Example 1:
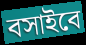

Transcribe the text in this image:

বসাইবে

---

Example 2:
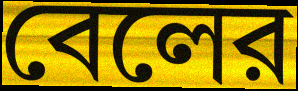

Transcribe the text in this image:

বেলের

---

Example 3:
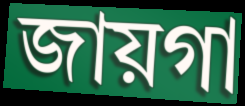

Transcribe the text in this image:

জায়গা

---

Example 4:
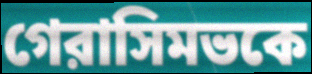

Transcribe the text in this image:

গেরাসিমভকে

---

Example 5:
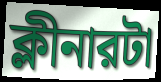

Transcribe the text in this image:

ক্লীনারটা